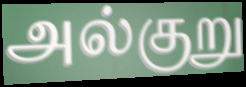
அல்குறு